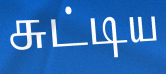
சுட்டிய